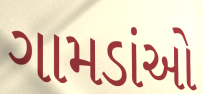
ગામડાંઓ